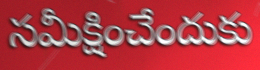
సమీక్షించేందుకు